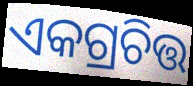
ଏକଗ୍ରଚିତ୍ତ